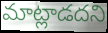
మాట్లాడదని